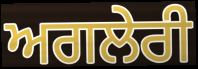
ਅਗਲੇਰੀ